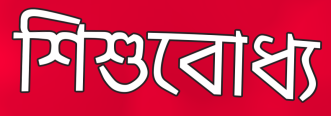
শিশুবোধ্য